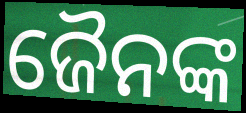
ଜୈନଙ୍କ